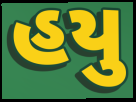
હયુ